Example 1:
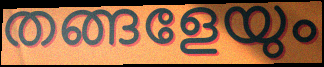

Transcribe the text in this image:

തങ്ങളേയും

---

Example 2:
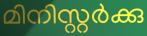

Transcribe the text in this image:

മിനിസ്റ്റർക്കു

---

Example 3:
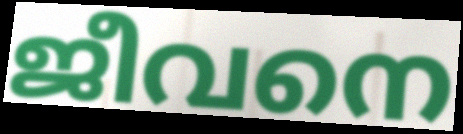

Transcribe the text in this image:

ജീവനെ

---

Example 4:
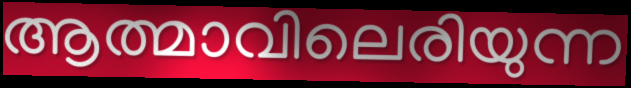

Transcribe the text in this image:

ആത്മാവിലെരിയുന്ന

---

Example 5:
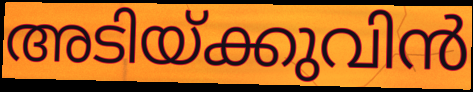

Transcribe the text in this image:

അടിയ്ക്കുവിൻ